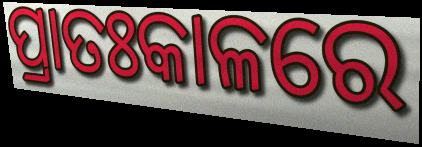
ପ୍ରାତଃକାଳରେ